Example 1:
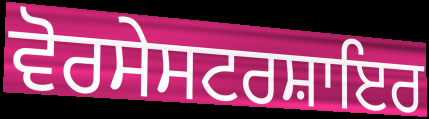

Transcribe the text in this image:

ਵੋਰਸੇਸਟਰਸ਼ਾਇਰ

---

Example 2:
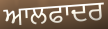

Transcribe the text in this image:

ਆਲਫਾਦਰ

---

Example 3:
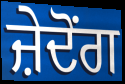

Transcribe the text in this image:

ਜ਼ੇਦੋਂਗ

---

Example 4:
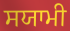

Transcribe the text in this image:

ਸਯਾਮੀ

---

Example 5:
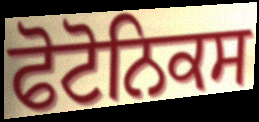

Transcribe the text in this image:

ਫੋਟੋਨਿਕਸ